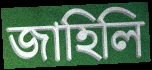
জাহিলি